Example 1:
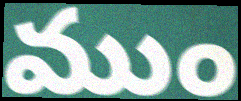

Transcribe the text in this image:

ముం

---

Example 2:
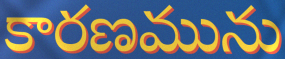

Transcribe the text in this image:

కారణమును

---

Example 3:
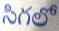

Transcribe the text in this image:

సిగలో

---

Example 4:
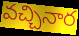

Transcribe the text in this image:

వచ్చినార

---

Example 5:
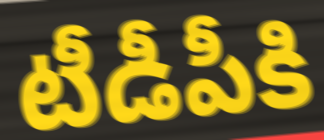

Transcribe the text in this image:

టీడీపీకి